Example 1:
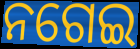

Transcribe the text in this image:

ନଗେଇ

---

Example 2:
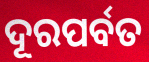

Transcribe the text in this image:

ଦୂରପର୍ବତ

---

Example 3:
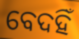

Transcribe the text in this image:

ବେଦହିଁ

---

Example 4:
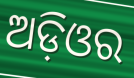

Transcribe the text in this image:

ଅଡ଼ିଓର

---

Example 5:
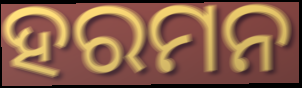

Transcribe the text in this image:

ହରମନ